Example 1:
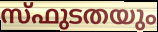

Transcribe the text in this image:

സ്ഫുടതയും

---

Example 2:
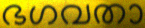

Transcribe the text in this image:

ഭഗവതാ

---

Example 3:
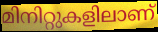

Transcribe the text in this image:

മിനിറ്റുകളിലാണ്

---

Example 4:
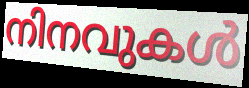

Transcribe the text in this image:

നിനവുകൾ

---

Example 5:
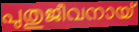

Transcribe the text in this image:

പുതുജീവനായ്